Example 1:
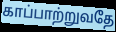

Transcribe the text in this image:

காப்பாற்றுவதே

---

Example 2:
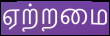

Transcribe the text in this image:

ஏற்றமை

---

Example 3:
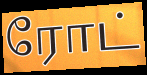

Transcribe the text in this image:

ரோட்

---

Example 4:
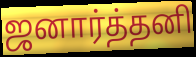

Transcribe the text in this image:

ஜனார்த்தனி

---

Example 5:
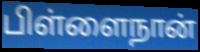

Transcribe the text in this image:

பிள்ளைநான்